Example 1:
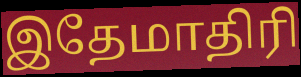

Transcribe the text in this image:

இதேமாதிரி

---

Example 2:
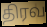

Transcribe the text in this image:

திரவ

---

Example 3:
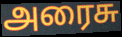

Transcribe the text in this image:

அரைசு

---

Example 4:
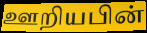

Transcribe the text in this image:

ஊறியபின்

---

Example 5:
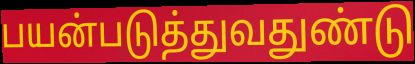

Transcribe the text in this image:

பயன்படுத்துவதுண்டு